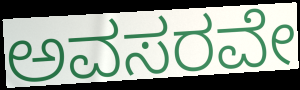
ಅವಸರವೇ